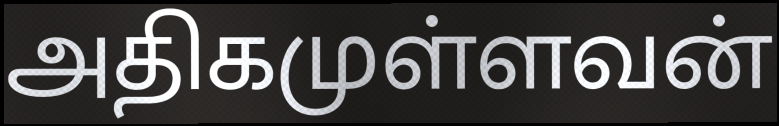
அதிகமுள்ளவன்